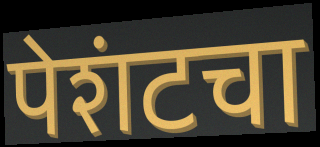
पेशंटचा